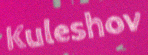
Kuleshov